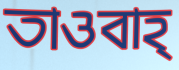
তাওবাহ্